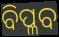
ବିପ୍ଳବ